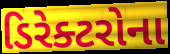
ડિરેક્ટરોના